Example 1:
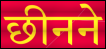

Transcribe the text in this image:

छीनने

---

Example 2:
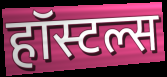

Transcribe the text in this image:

हॉस्टल्स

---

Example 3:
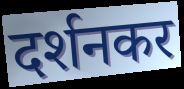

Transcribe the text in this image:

दर्शनकर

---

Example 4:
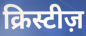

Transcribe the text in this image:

क्रिस्टीज़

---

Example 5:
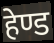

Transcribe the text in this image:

हेण्ड